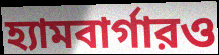
হ্যামবার্গারও